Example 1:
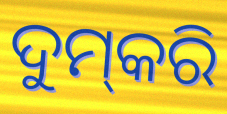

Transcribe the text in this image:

ଦୁମ୍‍କରି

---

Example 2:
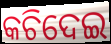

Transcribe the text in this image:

କଚିଦେଇ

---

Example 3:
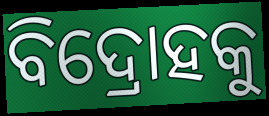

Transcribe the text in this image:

ବିଦ୍ରୋହକୁ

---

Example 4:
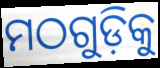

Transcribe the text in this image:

ମଠଗୁଡ଼ିକୁ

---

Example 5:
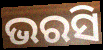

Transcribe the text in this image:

ଭରସି